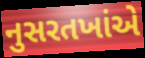
નુસરતખાંએ